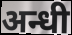
अन्धी